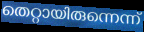
തെറ്റായിരുന്നെന്ന്